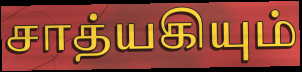
சாத்யகியும்